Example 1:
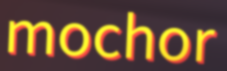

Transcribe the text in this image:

mochor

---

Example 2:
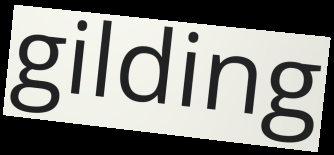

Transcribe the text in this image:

gilding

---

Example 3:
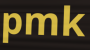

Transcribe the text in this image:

pmk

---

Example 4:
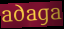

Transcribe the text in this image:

adaga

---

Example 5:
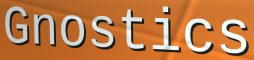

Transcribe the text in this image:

Gnostics